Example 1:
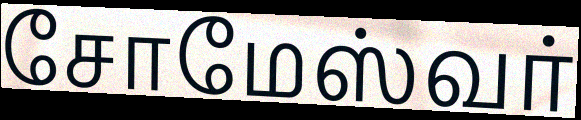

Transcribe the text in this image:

சோமேஸ்வர்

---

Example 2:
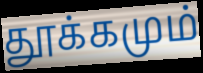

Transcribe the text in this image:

தூக்கமும்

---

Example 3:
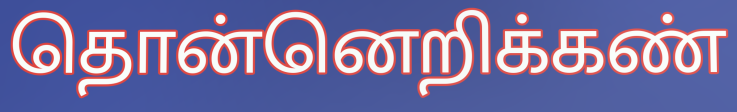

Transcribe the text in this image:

தொன்னெறிக்கண்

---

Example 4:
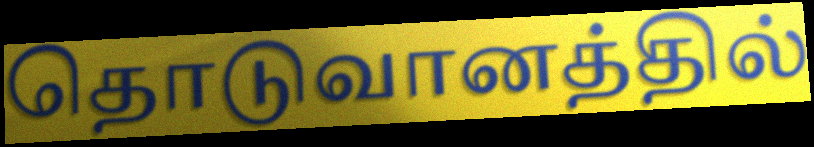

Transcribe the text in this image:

தொடுவானத்தில்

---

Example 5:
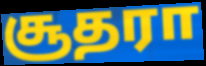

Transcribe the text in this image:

சூதரா